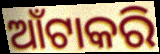
ଆଁଟାକରି